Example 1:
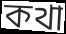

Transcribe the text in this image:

কথা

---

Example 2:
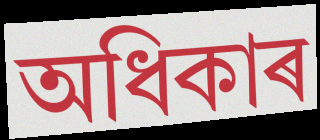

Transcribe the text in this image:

অধিকাৰ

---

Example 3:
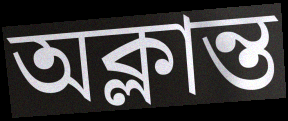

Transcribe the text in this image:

অক্লান্ত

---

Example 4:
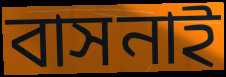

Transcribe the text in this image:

বাসনাই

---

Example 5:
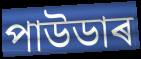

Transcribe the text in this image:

পাউডাৰ